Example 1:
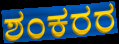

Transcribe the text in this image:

ಶಂಕರರ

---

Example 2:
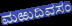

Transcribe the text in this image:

ಮಱುದಿವಸಂ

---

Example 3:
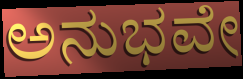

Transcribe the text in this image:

ಅನುಭವೇ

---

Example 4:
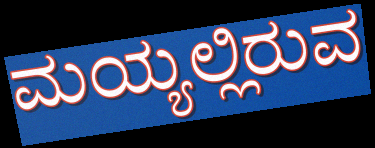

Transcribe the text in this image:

ಮಯ್ಯಲ್ಲಿರುವ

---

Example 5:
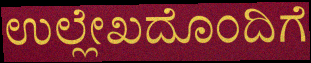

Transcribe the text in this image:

ಉಲ್ಲೇಖದೊಂದಿಗೆ